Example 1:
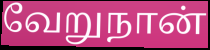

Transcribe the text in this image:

வேறுநான்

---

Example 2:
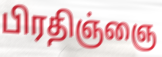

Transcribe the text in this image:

பிரதிஞ்ஞை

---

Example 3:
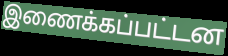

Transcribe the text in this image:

இணைக்கப்பட்டன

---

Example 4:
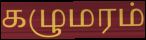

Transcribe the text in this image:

கழுமரம்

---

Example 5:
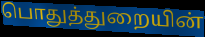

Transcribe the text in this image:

பொதுத்துறையின்